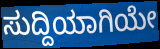
ಸುದ್ದಿಯಾಗಿಯೇ